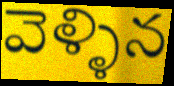
వెళ్ళిన